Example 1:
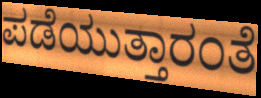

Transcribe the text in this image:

ಪಡೆಯುತ್ತಾರಂತೆ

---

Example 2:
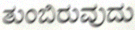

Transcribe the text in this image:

ತುಂಬಿರುವುದು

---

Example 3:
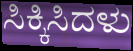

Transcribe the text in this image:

ಸಿಕ್ಕಿಸಿದಳು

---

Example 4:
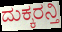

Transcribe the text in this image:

ದುಕ್ಕರನ್ತಿ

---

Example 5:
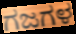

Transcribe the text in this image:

ಗಜಗಳ